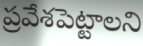
ప్రవేశపెట్టాలని